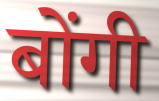
बोंगी